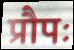
प्रौपः